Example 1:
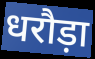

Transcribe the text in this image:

धरौड़ा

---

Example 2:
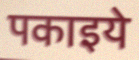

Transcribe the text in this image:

पकाइये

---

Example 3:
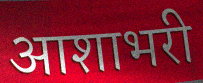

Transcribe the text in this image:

आशाभरी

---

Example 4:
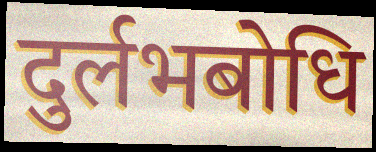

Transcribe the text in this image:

दुर्लभबोधि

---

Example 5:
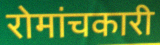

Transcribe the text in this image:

रोमांचकारी